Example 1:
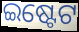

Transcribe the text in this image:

ଇଷ୍ଟେଟ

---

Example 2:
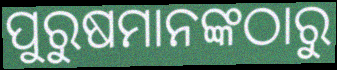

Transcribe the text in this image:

ପୁରୁଷମାନଙ୍କଠାରୁ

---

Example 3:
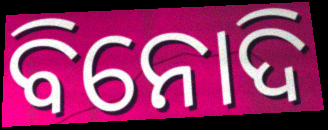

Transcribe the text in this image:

ବିନୋଦି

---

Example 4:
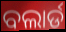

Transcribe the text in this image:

ବଲାର୍ଡ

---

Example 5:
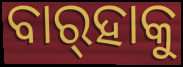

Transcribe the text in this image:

ବାର୍‍ହାକୁ